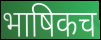
भाषिकच